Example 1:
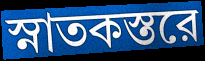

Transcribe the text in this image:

স্নাতকস্তরে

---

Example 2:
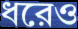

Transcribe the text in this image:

ধরেও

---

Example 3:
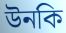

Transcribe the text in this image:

উনকি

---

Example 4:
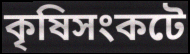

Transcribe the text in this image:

কৃষিসংকটে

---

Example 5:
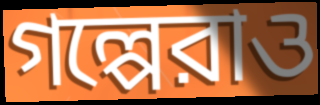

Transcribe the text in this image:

গল্পেরাও